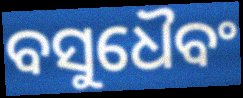
ବସୁଧୈବଂ